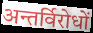
अन्तर्विरोधों